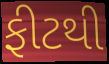
ફીટથી